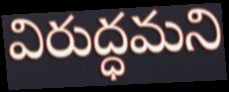
విరుద్ధమని